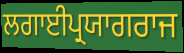
ਲਗਾਈਪ੍ਰਯਾਗਰਾਜ